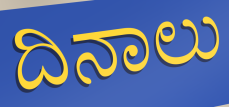
ದಿನಾಲು